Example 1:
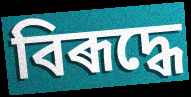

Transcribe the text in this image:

বিৰূদ্ধে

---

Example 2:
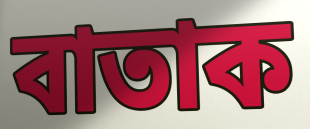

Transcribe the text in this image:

বাতাক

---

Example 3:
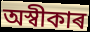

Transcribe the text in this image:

অস্বীকাৰ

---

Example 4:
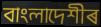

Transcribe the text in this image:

বাংলাদেশীৰ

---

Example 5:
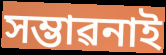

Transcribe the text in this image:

সম্ভাৱনাই